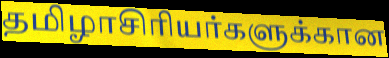
தமிழாசிரியர்களுக்கான